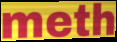
meth